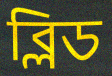
ব্লিড